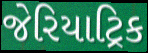
જેરિયાટ્રિક